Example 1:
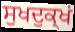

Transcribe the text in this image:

ਸੁਖਦੁਕ੍ਖਂ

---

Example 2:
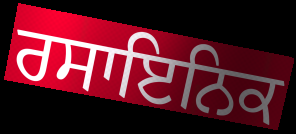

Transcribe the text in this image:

ਰਸਾਇਨਿਕ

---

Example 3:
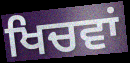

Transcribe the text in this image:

ਖਿਚਵਾਂ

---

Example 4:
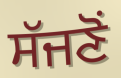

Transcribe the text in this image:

ਸੱਜਣੋਂ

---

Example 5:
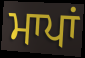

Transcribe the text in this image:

ਮਾਪਾਂ